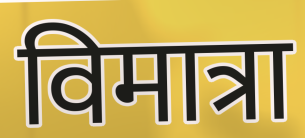
विमात्रा